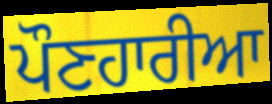
ਪੌਣਹਾਰੀਆ